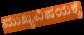
ಮುಖ್ಯವಿಷಯಕ್ಕೆ